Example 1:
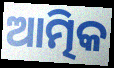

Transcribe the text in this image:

ଆତ୍ମିକ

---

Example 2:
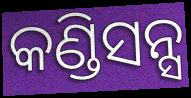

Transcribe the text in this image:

କଣ୍ଡିସନ୍ସ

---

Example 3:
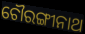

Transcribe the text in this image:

ଚୌରଙ୍ଗୀନାଥ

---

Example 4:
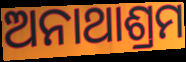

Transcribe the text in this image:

ଅନାଥାଶ୍ରମ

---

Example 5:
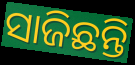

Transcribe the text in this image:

ସାଜିଛନ୍ତି